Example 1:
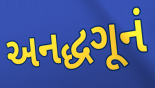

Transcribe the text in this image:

અનદ્ધગૂનં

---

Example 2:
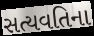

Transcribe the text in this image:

સત્યવતિના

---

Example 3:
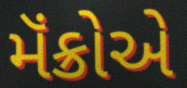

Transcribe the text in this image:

મૅંક્રોએ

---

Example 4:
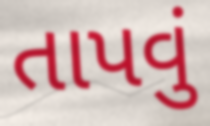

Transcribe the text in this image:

તાપવું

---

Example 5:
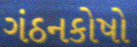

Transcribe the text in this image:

ગંઠનકોષો